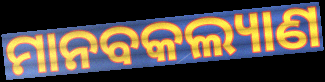
ମାନବକଲ୍ୟାଣ